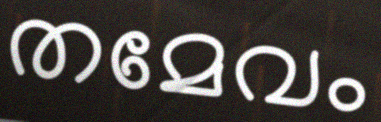
തമേവം